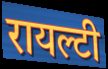
रायल्टी